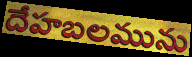
దేహబలమును